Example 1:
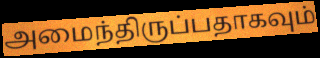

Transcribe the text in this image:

அமைந்திருப்பதாகவும்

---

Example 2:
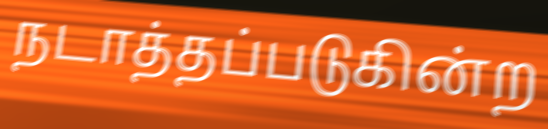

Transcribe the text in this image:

நடாத்தப்படுகின்ற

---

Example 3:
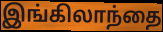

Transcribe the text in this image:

இங்கிலாந்தை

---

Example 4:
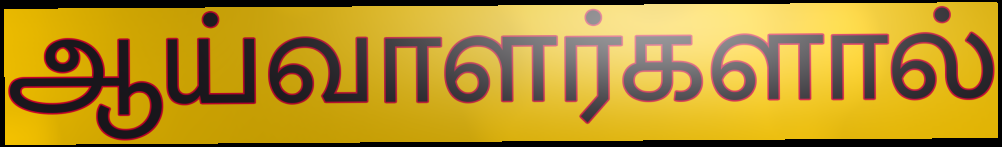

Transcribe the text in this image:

ஆய்வாளர்களால்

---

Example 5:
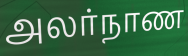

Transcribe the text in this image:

அலர்நாண